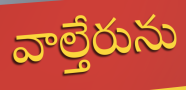
వాల్తేరును